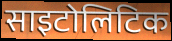
साइटोलिटिक